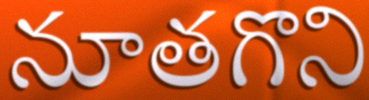
నూతగొని